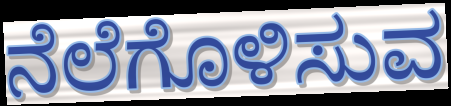
ನೆಲೆಗೊಳಿಸುವ